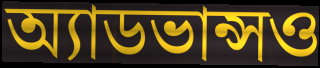
অ্যাডভান্সও